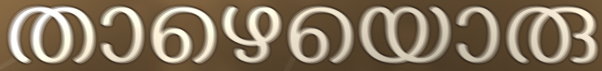
താഴെയൊരു